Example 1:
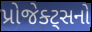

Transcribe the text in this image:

પ્રોજેક્ટ્સનો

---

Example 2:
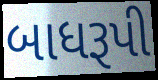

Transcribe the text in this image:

બાધરૂપી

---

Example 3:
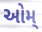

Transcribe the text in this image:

ઓમ્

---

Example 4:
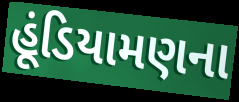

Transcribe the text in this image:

હૂંડિયામણના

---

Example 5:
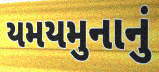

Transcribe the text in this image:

યમયમુનાનું